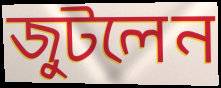
জুটলেন